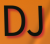
DJ